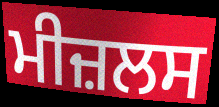
ਮੀਜ਼ਲਸ